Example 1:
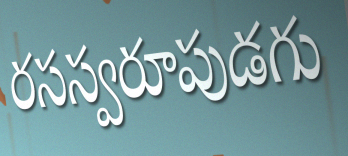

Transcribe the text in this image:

రసస్వరూపుడగు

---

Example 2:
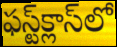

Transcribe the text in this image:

ఫస్ట్‌క్లాస్‌లో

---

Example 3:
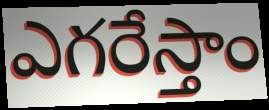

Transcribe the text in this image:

ఎగరేస్తాం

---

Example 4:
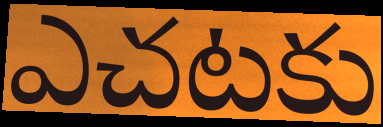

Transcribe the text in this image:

ఎచటకు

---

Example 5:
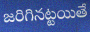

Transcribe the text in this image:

జరిగినట్టయితే